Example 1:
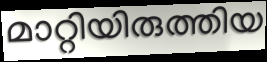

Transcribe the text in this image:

മാറ്റിയിരുത്തിയ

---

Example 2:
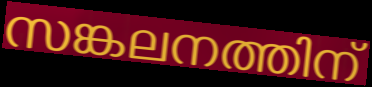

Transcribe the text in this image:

സങ്കലനത്തിന്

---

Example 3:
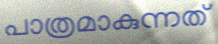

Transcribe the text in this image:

പാത്രമാകുന്നത്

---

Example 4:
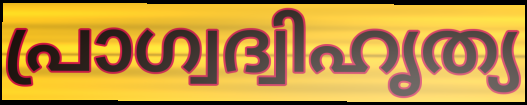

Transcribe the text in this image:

പ്രാഗ്വദ്വിഹൃത്യ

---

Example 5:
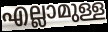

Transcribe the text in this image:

എല്ലാമുള്ള